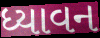
ધ્યાવન